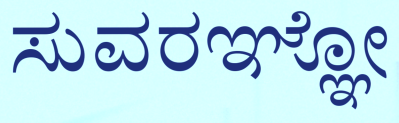
ಸುವರಞ್ಞೋ